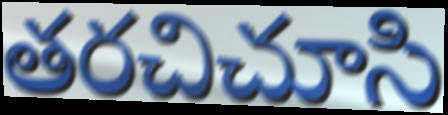
తరచిచూసి